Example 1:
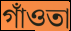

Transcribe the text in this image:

গাঁওতা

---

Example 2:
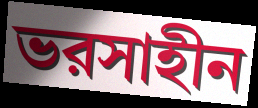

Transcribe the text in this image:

ভরসাহীন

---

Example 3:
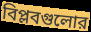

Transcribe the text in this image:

বিপ্লবগুলোর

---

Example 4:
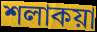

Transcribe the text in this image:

শলাকয়া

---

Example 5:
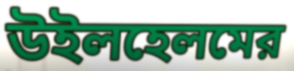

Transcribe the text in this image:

উইলহেলমের